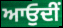
ਆਓੁਦੀਂ